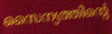
സൈന്യത്തിന്റെ